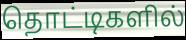
தொட்டிகளில்